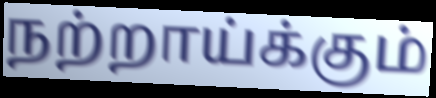
நற்றாய்க்கும்